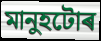
মানুহটোৰ